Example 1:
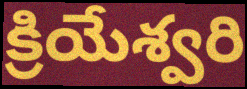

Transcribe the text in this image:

క్రియేశ్వరి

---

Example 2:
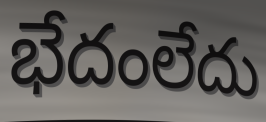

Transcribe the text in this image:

భేదంలేదు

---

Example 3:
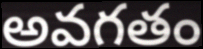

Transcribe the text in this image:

అవగతం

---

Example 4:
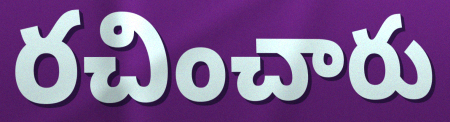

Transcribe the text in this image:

రచించారు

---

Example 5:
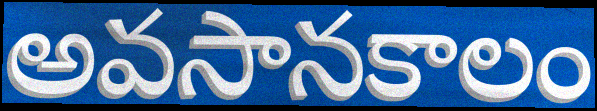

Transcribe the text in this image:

అవసానకాలం